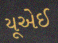
યૂએઈ